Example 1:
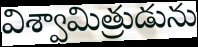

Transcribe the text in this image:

విశ్వామిత్రుడును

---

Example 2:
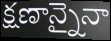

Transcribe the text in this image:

క్షణాన్నైనా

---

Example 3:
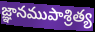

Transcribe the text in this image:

జ్ఞానముపాశ్రిత్య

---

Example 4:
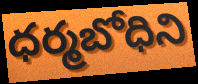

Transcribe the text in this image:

ధర్మబోధిని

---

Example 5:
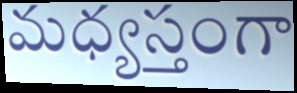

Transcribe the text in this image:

మధ్యస్తంగా